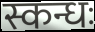
स्कन्धः